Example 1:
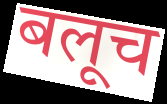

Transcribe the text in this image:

बलूच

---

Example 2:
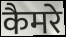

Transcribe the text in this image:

कैमरे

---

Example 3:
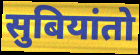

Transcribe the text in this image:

सुबियांतो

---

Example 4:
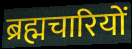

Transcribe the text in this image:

ब्रह्मचारियों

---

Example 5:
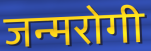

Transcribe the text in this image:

जन्मरोगी